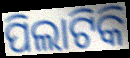
ପିଲାଟିକି